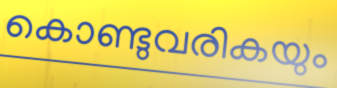
കൊണ്ടുവരികയും